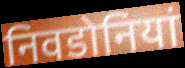
निवडोनियां